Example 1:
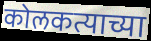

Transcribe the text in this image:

कोलकत्याच्या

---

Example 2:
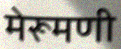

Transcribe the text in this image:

मेरूमणी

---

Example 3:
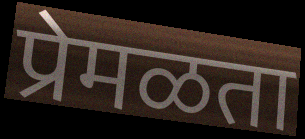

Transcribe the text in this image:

प्रेमळता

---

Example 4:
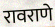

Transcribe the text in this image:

रावराणे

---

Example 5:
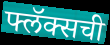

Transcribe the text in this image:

फ्लॅक्सची